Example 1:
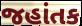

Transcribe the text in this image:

જહાંતક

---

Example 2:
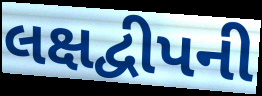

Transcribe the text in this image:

લક્ષદ્વીપની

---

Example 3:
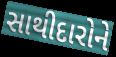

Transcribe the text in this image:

સાથીદારોને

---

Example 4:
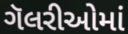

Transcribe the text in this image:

ગૅલરીઓમાં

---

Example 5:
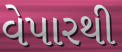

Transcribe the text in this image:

વેપારથી